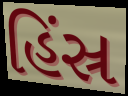
હિંસ્ર